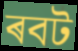
ৰবট